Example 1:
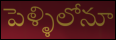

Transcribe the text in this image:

పెళ్ళిలోనూ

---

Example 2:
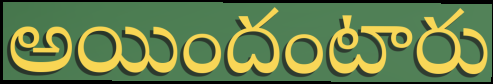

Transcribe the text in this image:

అయిందంటారు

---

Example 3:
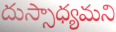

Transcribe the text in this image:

దుస్సాధ్యమని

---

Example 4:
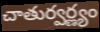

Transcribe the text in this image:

చాతుర్వర్ణ్యం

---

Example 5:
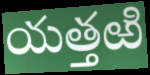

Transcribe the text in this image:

యత్తఱి